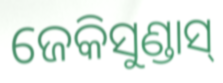
ଜେକିସୁଣ୍ଡାସ୍